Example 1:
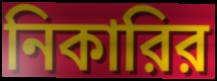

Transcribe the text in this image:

নিকারির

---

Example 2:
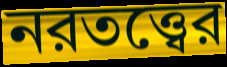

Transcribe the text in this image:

নরতত্ত্বের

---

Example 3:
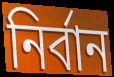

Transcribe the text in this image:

নির্বান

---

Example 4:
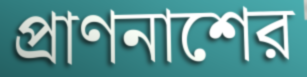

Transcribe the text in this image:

প্রাণনাশের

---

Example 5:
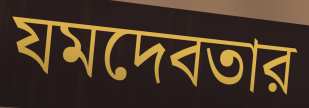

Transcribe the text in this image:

যমদেবতার